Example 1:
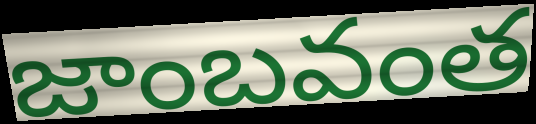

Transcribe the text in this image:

జాంబవంత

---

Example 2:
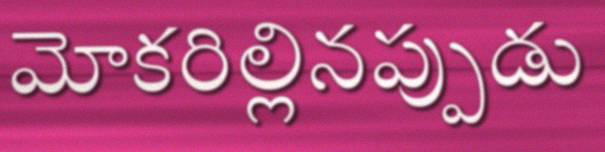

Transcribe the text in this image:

మోకరిల్లినప్పుడు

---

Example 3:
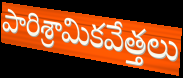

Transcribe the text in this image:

పారిశ్రామికవేత్తలు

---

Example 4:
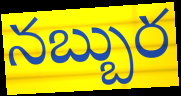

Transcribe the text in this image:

నబ్బుర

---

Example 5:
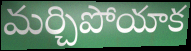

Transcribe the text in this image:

మర్చిపోయాక